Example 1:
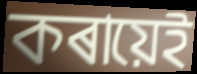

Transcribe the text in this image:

কৰায়েই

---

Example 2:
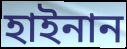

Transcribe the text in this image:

হাইনান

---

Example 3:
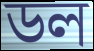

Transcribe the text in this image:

ডল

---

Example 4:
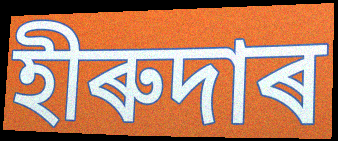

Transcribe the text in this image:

হীৰুদাৰ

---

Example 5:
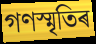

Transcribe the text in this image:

গণস্মৃতিৰ